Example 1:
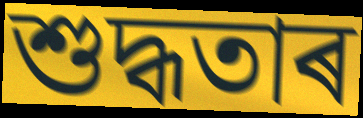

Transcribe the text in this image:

শুদ্ধতাৰ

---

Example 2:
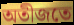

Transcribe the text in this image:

অতীজতে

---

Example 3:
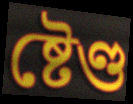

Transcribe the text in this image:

ষ্টেণ্ড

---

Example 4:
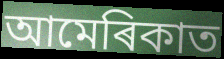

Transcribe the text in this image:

আমেৰিকাত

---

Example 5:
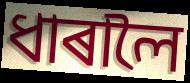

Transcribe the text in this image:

ধাৰালৈ